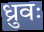
ध्रुवः